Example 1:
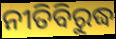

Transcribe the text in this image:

ନୀତିବିରୁଦ୍ଧ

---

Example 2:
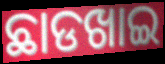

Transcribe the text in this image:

ଛାଡଖାଇ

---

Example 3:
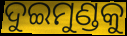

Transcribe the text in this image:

ଦୁଇମୁଣ୍ଡକୁ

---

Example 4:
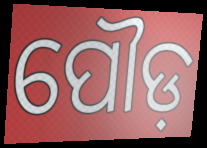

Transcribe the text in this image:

ପୌଡ଼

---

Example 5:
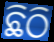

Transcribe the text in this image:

ଛିଠି